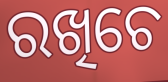
ରଖିଚେ